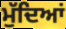
ਮੁੱਦਿਆਂ